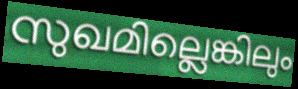
സുഖമില്ലെങ്കിലും